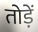
तोड़ें